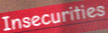
Insecurities